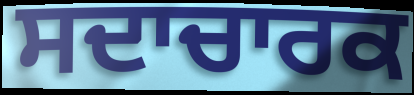
ਸਦਾਚਾਰਕ